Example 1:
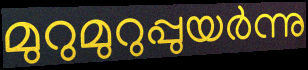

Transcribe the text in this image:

മുറുമുറുപ്പുയർന്നു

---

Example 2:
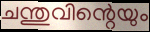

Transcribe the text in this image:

ചന്തുവിന്റെയും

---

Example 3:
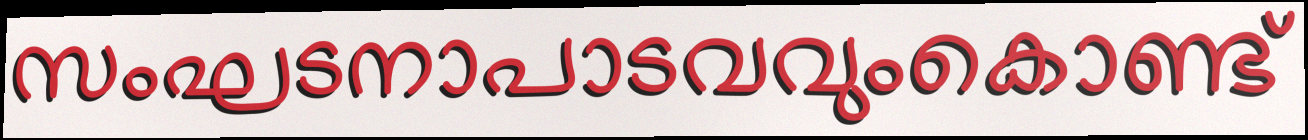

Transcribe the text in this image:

സംഘടനാപാടവവുംകൊണ്ട്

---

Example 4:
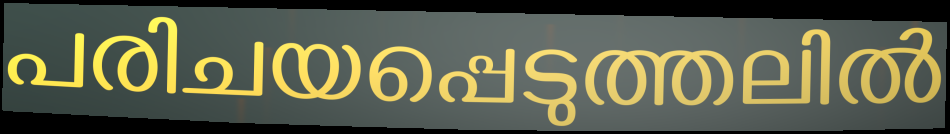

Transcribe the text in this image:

പരിചയപ്പെടുത്തലിൽ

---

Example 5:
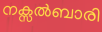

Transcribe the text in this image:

നക്സൽബാരി